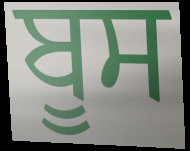
ਬੂਸ